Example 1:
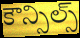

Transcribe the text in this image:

కౌన్సిల్స్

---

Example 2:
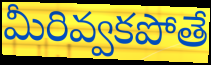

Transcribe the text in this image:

మీరివ్వకపోతే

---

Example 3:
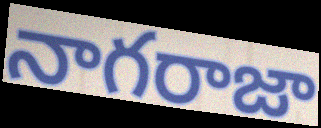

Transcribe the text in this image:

నాగరాజా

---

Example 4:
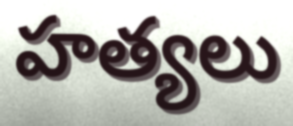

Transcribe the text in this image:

హత్యలు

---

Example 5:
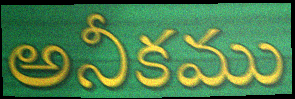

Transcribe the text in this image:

అనీకము